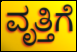
ವೃತ್ತಿಗೆ